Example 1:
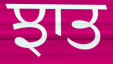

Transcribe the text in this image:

ਝਾਤ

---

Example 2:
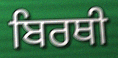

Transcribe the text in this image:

ਬਿਰਥੀ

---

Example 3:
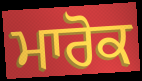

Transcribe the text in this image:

ਮਾਰੋਕ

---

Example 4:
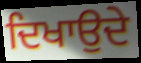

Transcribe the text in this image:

ਦਿਖਾਉਦੇ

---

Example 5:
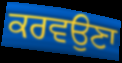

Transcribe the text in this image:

ਕਰਵਉਣਾ